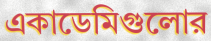
একাডেমিগুলোর